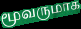
மூவருமாக